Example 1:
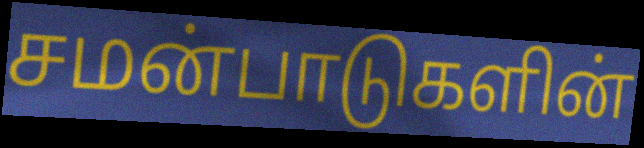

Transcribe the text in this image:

சமன்பாடுகளின்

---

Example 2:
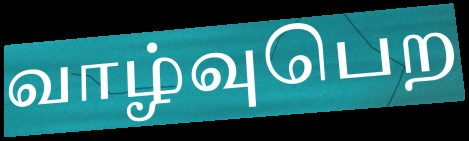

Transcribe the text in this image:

வாழ்வுபெற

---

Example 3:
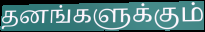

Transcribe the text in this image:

தனங்களுக்கும்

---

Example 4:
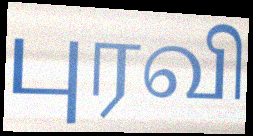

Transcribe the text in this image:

புரவி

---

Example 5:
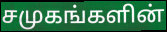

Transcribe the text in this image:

சமுகங்களின்